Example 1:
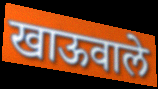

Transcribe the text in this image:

खाऊवाले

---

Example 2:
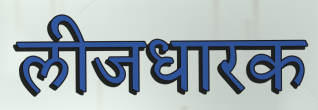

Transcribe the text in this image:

लीजधारक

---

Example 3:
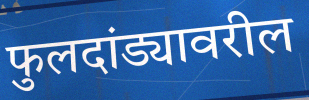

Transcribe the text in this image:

फुलदांड्यावरील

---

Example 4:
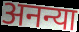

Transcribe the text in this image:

अनन्या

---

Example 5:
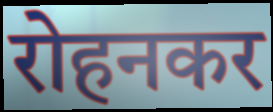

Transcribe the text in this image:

रोहनकर